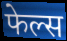
फेल्स